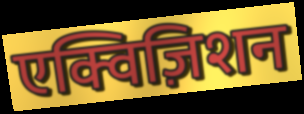
एक्विज़िशन